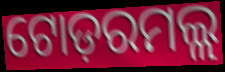
ଟୋଡ଼ରମଲ୍ଲ